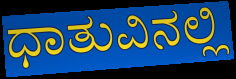
ಧಾತುವಿನಲ್ಲಿ